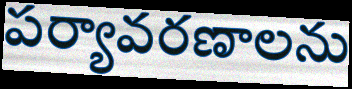
పర్యావరణాలను